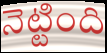
నెట్టింది